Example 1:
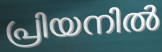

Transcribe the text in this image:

പ്രിയനിൽ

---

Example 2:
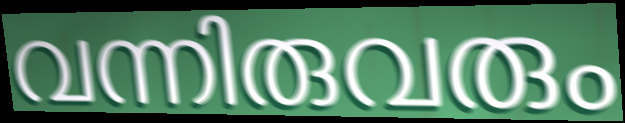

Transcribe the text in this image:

വന്നിരുവരും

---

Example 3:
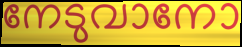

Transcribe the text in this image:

നേടുവാനോ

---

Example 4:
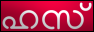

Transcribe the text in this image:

ഹസ്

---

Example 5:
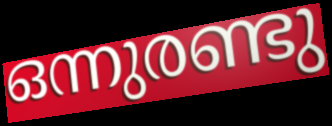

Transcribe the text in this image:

ഒന്നുരണ്ടു